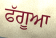
ਫੱਗੂਆ